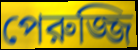
পেরুজ্জি